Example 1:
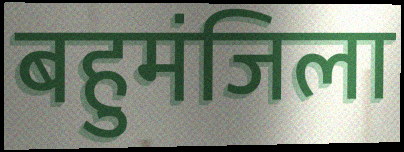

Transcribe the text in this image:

बहुमंजिला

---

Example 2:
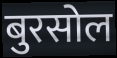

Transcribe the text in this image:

बुरसोल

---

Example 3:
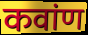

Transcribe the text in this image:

कवांण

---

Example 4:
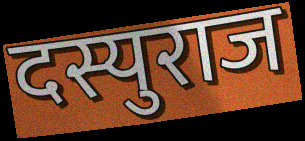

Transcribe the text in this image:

दस्युराज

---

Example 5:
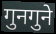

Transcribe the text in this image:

गुनगुने